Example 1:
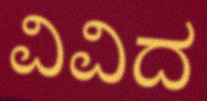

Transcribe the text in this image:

ವಿವಿದ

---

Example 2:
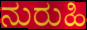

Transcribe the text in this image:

ನುರುಹಿ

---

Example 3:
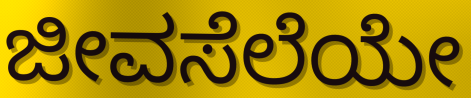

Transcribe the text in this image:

ಜೀವಸೆಲೆಯೇ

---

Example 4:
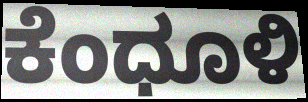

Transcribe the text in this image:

ಕೆಂಧೂಳಿ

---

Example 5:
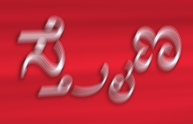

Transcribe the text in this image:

ಸ್ತ್ರೈಣ